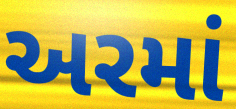
અરમાં